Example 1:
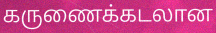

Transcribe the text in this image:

கருணைக்கடலான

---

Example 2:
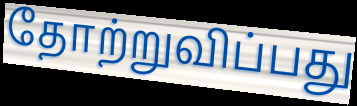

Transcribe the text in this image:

தோற்றுவிப்பது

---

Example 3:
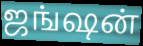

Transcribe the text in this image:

ஜங்ஷன்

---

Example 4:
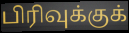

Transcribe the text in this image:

பிரிவுக்குக்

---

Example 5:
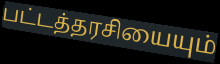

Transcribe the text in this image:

பட்டத்தரசியையும்